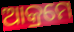
ଆକ୍ରମେ